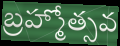
బ్రహ్మోత్సవ